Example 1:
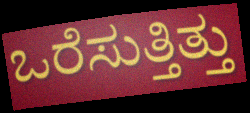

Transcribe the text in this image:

ಒರೆಸುತ್ತಿತ್ತು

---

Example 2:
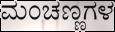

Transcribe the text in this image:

ಮಂಚಣ್ಣಗಳ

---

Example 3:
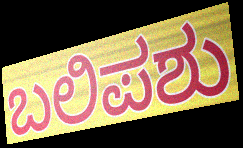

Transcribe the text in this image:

ಬಲಿಪಶು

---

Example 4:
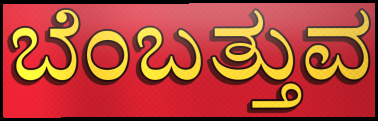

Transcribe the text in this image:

ಬೆಂಬತ್ತುವ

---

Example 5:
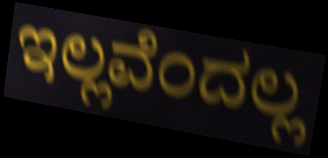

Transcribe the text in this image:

ಇಲ್ಲವೆಂದಲ್ಲ